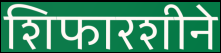
शिफारशीने